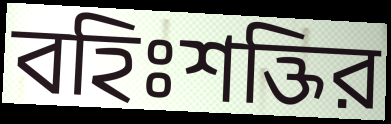
বহিঃশক্তির